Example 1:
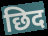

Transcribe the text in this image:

छिद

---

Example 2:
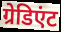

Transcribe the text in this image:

ग्रेडिएंट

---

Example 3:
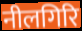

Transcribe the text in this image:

नीलगिरि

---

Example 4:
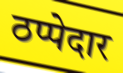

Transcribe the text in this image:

ठप्पेदार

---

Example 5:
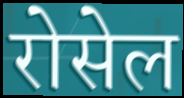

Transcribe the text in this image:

रोसेल